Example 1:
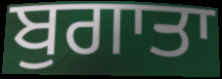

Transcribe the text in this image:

ਬੁਗਾਤਾ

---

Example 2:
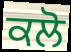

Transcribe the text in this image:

ਕਲੋ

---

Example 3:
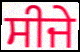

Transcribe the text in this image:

ਸੀਜੇ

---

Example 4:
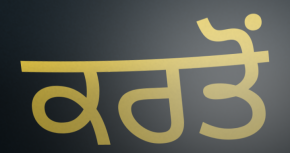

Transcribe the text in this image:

ਕਰਤੋਂ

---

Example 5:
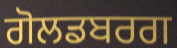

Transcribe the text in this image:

ਗੋਲਡਬਰਗ